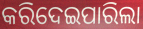
କରିଦେଇପାରିଲା